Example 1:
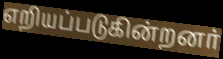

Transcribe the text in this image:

எறியப்படுகின்றனர்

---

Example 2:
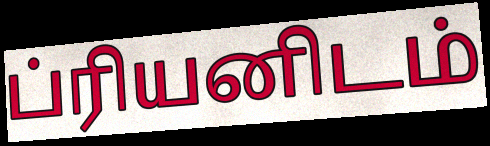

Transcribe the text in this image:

ப்ரியனிடம்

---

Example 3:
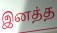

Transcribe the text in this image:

இனத்த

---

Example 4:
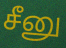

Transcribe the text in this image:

சீனு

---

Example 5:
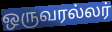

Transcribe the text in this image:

ஒருவரல்லர்